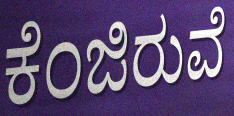
ಕೆಂಜಿರುವೆ